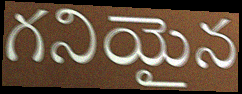
గనియైన